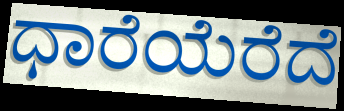
ಧಾರೆಯೆರೆದೆ